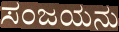
ಸಂಜಯನು